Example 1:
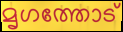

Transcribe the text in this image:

മൃഗത്തോട്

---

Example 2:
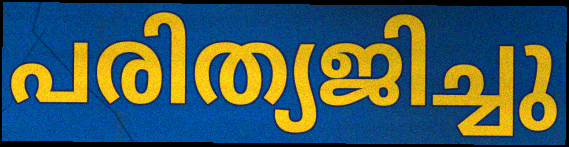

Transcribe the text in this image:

പരിത്യജിച്ചു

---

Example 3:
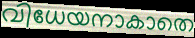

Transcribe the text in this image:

വിധേയനാകാതെ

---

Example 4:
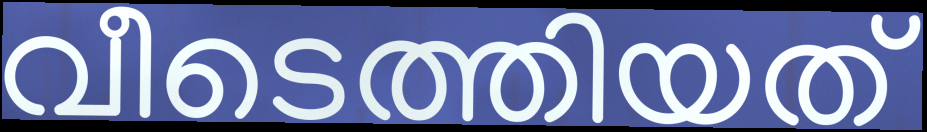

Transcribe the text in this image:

വീടെത്തിയത്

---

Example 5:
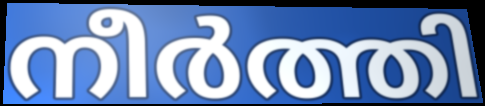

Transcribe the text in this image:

നീർത്തി